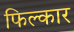
फिल्कार